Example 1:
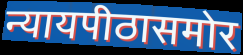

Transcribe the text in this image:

न्यायपीठासमोर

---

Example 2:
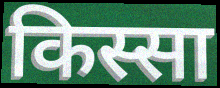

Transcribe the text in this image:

किस्सा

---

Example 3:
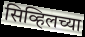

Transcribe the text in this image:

सिव्हिलच्या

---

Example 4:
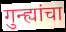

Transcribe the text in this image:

गुन्ह्यांचा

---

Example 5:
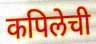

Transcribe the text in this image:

कपिलेची